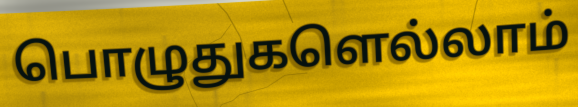
பொழுதுகளெல்லாம்